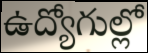
ఉద్యోగుల్లో